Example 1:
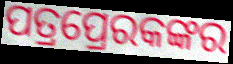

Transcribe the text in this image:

ପତ୍ରପ୍ରେରକଙ୍କର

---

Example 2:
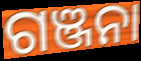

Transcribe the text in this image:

ଗଞ୍ଜନା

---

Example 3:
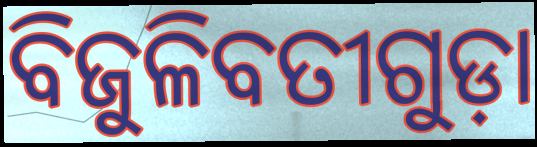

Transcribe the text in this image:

ବିଜୁଳିବତୀଗୁଡ଼ା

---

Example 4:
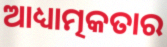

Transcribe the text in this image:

ଆଧ୍ୟାତ୍ମକତାର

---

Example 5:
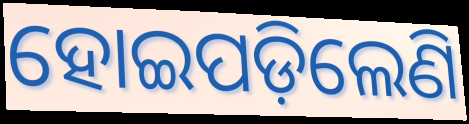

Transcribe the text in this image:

ହୋଇପଡ଼ିଲେଣି